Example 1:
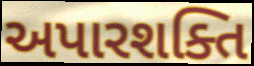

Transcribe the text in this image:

અપારશક્તિ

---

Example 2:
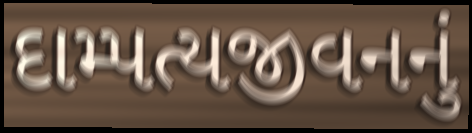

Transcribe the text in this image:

દામ્પત્યજીવનનું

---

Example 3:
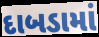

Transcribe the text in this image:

દાબડામાં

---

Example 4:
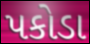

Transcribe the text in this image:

પકોડા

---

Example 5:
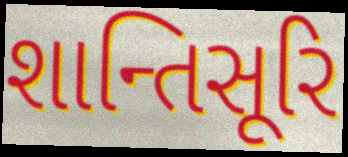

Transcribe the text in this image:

શાન્તિસૂરિ